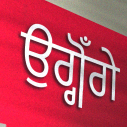
ਉਗ੍ਗੋਁਗੇ